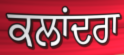
ਕਲਾਂਦਰਾ